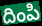
దింపి